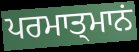
ਪਰਮਾਤ੍ਮਾਨਂ